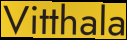
Vitthala